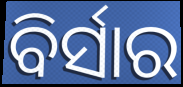
ବିର୍ସାର